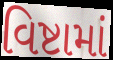
વિષ્ટામાં